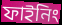
ফাইনিং